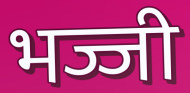
भज्जी